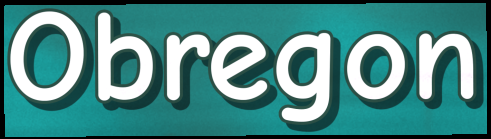
Obregon